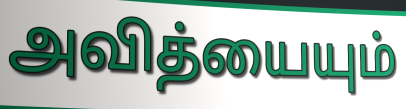
அவித்யையும்